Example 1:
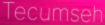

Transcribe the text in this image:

Tecumseh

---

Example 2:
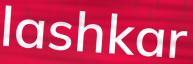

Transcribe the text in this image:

lashkar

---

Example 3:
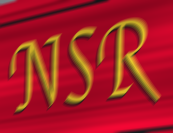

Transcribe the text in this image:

NSR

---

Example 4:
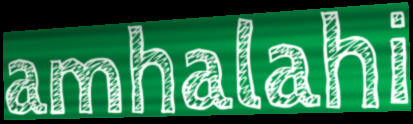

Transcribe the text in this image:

amhalahi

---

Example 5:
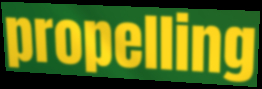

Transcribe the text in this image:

propelling